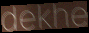
dekhe